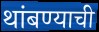
थांबण्याची